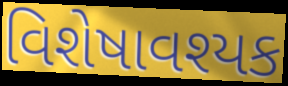
વિશેષાવશ્યક